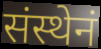
संस्थेनं